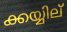
ക്കയ്യില്